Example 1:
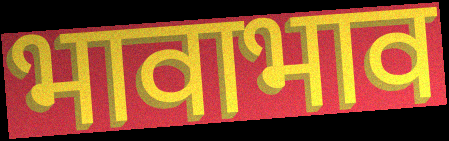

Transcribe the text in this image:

भावाभाव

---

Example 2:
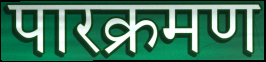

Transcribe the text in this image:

पारक्रमण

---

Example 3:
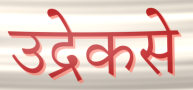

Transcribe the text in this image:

उद्रेकसे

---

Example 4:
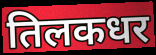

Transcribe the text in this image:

तिलकधर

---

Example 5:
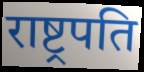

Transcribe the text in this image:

राष्ट्र्रपति